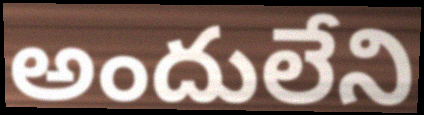
అందులేని